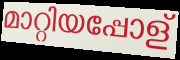
മാറ്റിയപ്പോള്